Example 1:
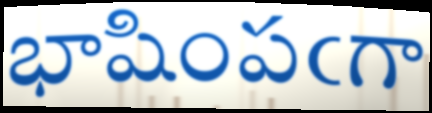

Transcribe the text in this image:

భాషింపఁగా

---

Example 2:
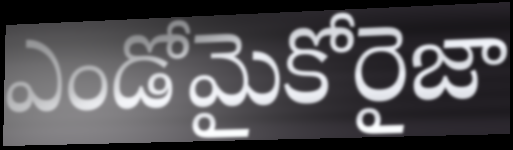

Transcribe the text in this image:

ఎండోమైకోరైజా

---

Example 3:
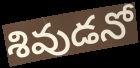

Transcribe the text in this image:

శివుడనో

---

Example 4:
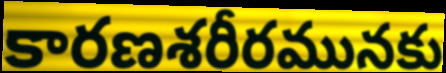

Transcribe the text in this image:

కారణశరీరమునకు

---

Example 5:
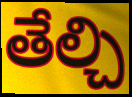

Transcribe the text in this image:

తేల్చి